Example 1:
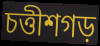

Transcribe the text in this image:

চত্তীশগড়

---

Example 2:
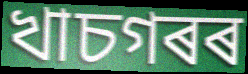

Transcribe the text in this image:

খাচগৰৰ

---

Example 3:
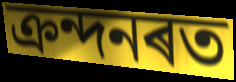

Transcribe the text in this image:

ক্ৰন্দনৰত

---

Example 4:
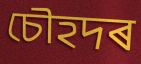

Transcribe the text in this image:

চৌহদৰ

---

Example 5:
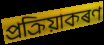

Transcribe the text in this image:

প্ৰক্ৰিয়াকৰণ